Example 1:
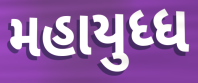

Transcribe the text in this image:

મહાયુધ્ધ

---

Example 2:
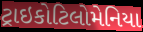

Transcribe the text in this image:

ટ્રાઇકોટિલોમેનિયા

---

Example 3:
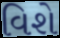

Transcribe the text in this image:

વિશે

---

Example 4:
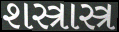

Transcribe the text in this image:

શસ્ત્રાસ્ત્ર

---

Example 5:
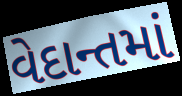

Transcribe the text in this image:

વેદાન્તમાં